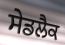
ਸੇਡਲੈਕ